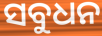
ସବୁଧନ